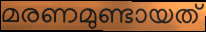
മരണമുണ്ടായത്